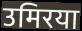
उमिरया